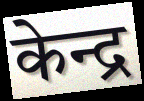
केन्‍द्र